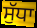
ਸੁੱਧਾ